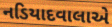
નડિયાદવાલાએ